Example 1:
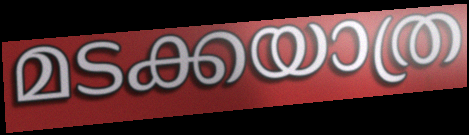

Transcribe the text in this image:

മടക്കയാത്ര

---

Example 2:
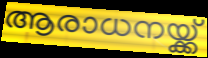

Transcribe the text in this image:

ആരാധനയ്ക്ക്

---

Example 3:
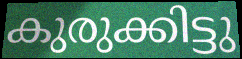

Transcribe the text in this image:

കുരുക്കിട്ടു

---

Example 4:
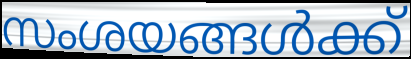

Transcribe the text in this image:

സംശയങ്ങൾക്ക്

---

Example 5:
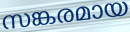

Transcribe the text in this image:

സങ്കരമായ